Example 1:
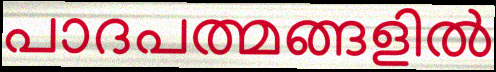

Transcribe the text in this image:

പാദപത്മങ്ങളിൽ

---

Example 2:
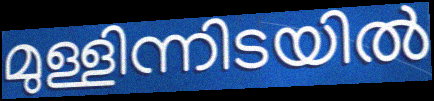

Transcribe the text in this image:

മുള്ളിന്നിടയിൽ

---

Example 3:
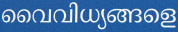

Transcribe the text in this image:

വൈവിധ്യങ്ങളെ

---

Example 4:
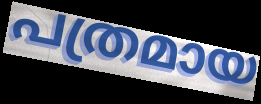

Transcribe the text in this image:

പത്രമായ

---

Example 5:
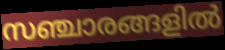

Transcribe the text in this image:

സഞ്ചാരങ്ങളിൽ